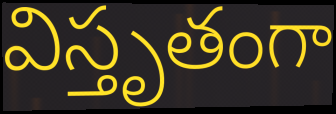
విస్తృతంగా